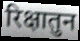
रिक्षातुन